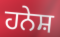
ਹਨੇਸ਼